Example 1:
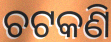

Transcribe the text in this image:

ଚଟକଣି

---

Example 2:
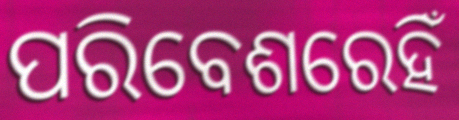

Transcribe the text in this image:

ପରିବେଶରେହିଁ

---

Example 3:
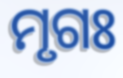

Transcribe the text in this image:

ମୃଗଃ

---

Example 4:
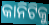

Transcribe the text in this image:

କାନିଟିକୁ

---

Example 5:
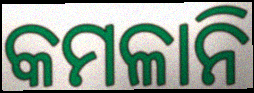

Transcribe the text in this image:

କମଳାନି